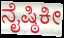
ನೈಷ್ಠಿಕೀ